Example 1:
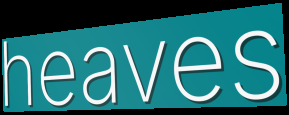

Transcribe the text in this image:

heaves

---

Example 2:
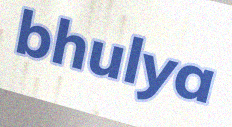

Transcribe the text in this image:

bhulya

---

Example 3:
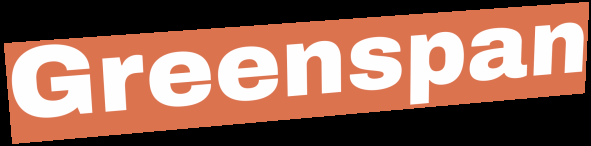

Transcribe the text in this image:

Greenspan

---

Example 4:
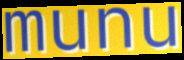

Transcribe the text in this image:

munu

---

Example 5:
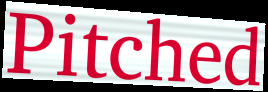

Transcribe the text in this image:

Pitched